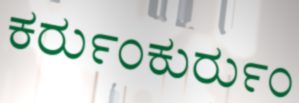
ಕರ್ರುಂಕುರ್ರುಂ